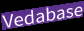
Vedabase